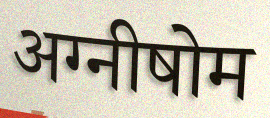
अग्नीषोम